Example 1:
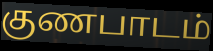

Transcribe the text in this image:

குணபாடம்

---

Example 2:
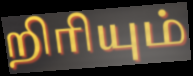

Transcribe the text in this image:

றிரியும்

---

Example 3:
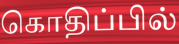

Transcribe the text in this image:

கொதிப்பில்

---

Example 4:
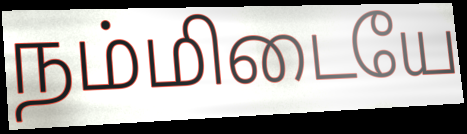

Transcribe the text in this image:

நம்மிடையே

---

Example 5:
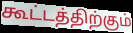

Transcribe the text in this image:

கூட்டத்திற்கும்